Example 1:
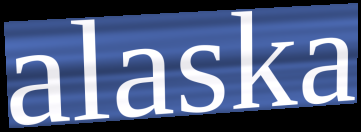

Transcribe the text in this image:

alaska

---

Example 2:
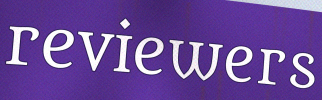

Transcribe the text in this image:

reviewers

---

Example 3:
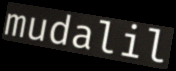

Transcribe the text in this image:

mudalil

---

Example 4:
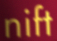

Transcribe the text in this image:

nift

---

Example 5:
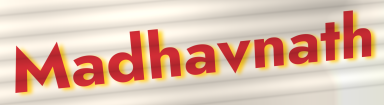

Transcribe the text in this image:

Madhavnath